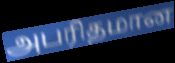
அபரிதமான